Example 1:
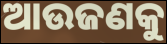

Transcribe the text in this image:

ଆଉଜଣକୁ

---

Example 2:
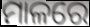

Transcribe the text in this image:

ମାଳରେ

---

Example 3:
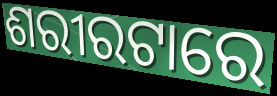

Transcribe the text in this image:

ଶରୀରଟାରେ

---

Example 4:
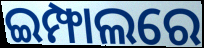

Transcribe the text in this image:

ଇମ୍ଫାଲରେ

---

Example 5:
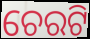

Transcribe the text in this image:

ଚେରଟି